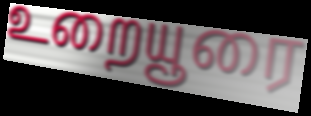
உறையூரை